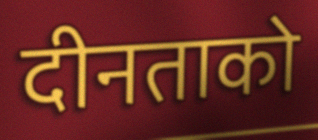
दीनताको